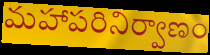
మహాపరినిర్వాణం